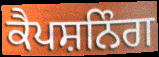
ਕੈਪਸ਼ਨਿੰਗ